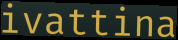
ivattina